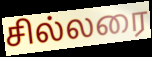
சில்லரை